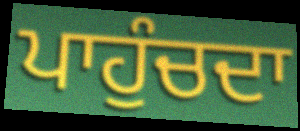
ਪਾਹੁੰਚਦਾ